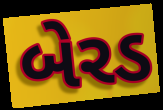
બેરડ